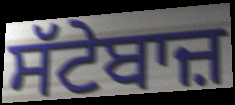
ਸੱਟੇਬਾਜ਼